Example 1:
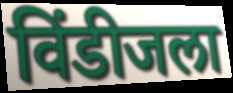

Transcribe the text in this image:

विंडीजला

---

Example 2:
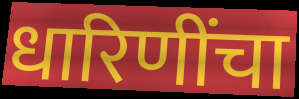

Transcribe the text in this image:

धारिणींचा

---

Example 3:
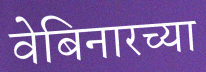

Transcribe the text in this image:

वेबिनारच्या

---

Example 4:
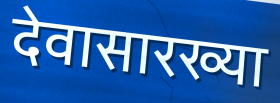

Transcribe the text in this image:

देवासारख्या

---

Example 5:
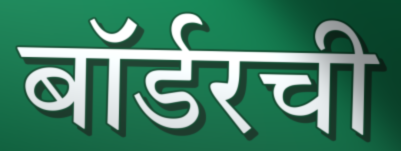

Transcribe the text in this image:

बॉर्डरची